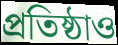
প্রতিষ্ঠাও